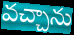
వచ్చాను